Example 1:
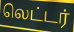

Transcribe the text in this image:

லெட்டர்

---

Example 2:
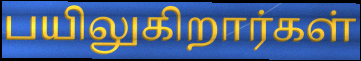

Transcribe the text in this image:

பயிலுகிறார்கள்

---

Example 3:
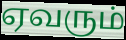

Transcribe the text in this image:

ஏவரும்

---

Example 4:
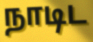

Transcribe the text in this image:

நாடிட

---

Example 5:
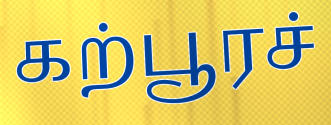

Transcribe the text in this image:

கற்பூரச்